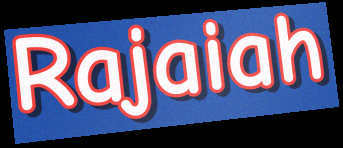
Rajaiah